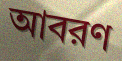
আবরণ